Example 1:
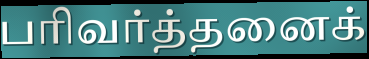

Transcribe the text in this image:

பரிவர்த்தனைக்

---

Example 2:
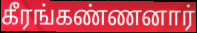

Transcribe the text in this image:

கீரங்கண்ணனார்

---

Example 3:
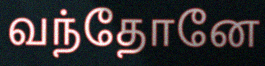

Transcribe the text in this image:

வந்தோனே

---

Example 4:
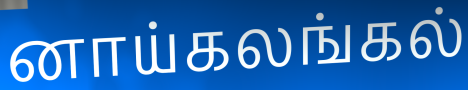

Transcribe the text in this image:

னாய்கலங்கல்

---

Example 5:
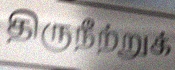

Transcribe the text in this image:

திருநீற்றுக்